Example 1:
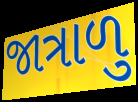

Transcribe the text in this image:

જાત્રાળુ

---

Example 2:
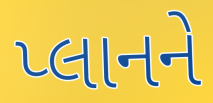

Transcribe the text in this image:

પ્લાનને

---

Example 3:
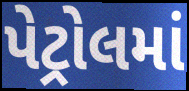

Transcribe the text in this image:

પેટ્રોલમાં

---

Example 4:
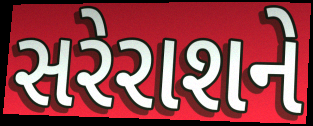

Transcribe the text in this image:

સરેરાશને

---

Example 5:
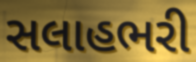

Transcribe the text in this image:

સલાહભરી